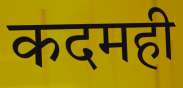
कदमही